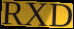
RXD